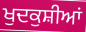
ਖੁਦਕੁਸ਼ੀਆਂ